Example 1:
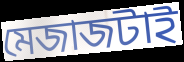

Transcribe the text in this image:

মেজাজটাই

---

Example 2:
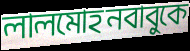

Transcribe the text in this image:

লালমোহনবাবুকে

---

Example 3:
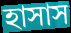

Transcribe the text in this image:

হাসাস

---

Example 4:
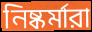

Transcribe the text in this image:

নিষ্কর্মারা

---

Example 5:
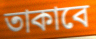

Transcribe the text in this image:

তাকাবে